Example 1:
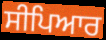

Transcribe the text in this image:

ਸੀਪਿਆਰ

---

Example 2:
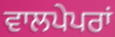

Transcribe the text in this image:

ਵਾਲਪੇਪਰਾਂ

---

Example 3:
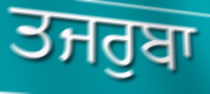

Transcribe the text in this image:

ਤਜਰੁਬਾ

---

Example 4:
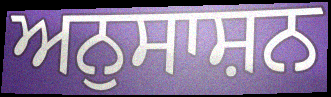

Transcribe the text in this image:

ਅਨੁਸਾਸ਼ਨ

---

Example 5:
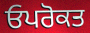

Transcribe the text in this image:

ਓਪਰੋਕਤ